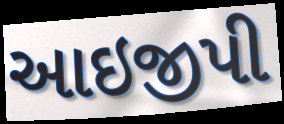
આઇજીપી